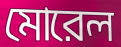
মোরেল